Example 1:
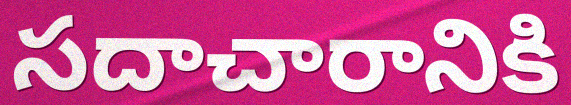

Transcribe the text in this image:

సదాచారానికి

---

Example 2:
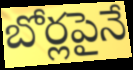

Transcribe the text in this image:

బోర్లపైనే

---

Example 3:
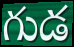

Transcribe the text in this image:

గుడ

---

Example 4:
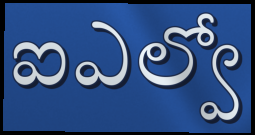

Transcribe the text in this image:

ఐఎల్వో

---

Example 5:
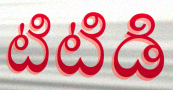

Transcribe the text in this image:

టిటిడి